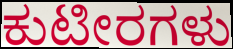
ಕುಟೀರಗಳು